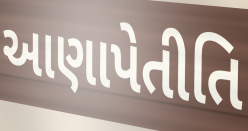
આણાપેતીતિ